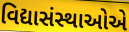
વિદ્યાસંસ્થાઓએ